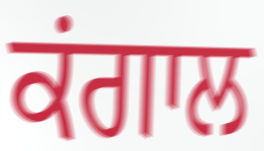
ਕਂਗਾਲ